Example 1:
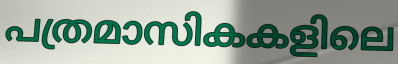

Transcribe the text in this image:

പത്രമാസികകളിലെ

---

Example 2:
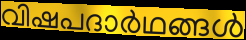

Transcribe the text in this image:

വിഷപദാർഥങ്ങൾ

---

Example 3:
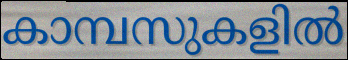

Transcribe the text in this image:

കാമ്പസുകളിൽ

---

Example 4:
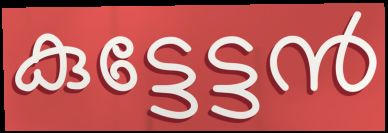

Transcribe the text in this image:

കുട്ടേട്ടൻ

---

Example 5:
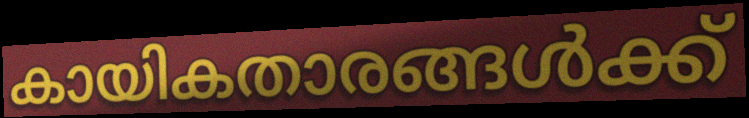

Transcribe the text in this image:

കായികതാരങ്ങൾക്ക്